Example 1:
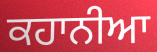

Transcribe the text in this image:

ਕਹਾਨੀਆ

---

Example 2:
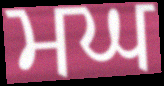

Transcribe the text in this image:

ਮਘ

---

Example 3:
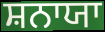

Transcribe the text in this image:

ਸ਼ਨਾਯਾ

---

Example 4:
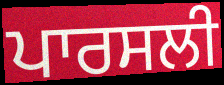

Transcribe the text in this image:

ਪਾਰਸਲੀ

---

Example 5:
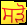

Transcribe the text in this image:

ਸੜੋ